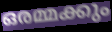
ഒരമ്മക്കും